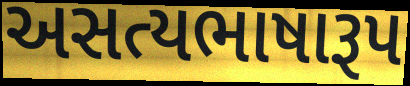
અસત્યભાષારૂપ